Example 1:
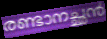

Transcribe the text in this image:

രണ്ടാനച്ഛൻ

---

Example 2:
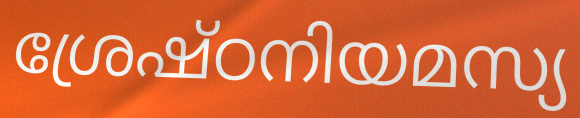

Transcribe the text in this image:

ശ്രേഷ്ഠനിയമസ്യ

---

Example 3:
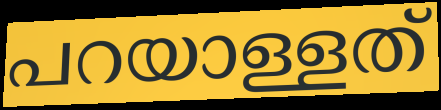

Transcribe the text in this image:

പറയാള്ളത്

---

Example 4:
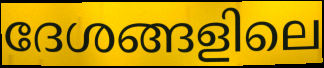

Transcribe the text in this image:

ദേശങ്ങളിലെ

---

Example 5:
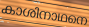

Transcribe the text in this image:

കാശിനാഥനെ